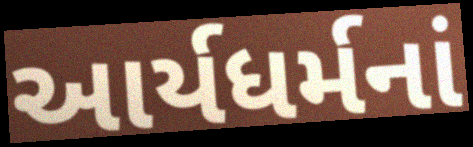
આર્યધર્મનાં